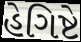
હેગિષ્ટે